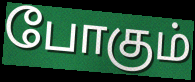
போகும்